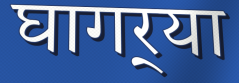
घागर्या